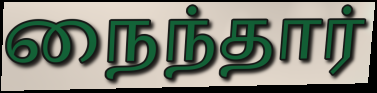
நைந்தார்